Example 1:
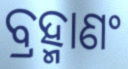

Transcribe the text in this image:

ବ୍ରହ୍ମାଣଂ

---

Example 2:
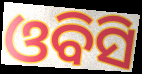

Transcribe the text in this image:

ଓବିସି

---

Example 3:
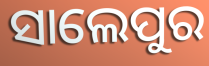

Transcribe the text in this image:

ସାଲେପୁର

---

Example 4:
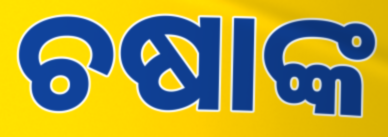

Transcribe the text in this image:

ଚଷାଙ୍କ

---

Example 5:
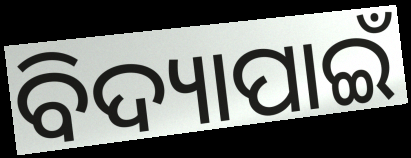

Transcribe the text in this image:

ବିଦ୍ୟାପାଇଁ